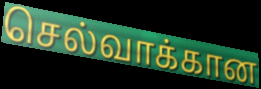
செல்வாக்கான